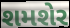
શમશેર